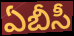
ఏబీసీ